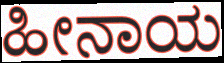
ಹೀನಾಯ